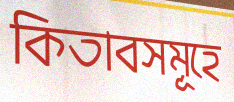
কিতাবসমূহে